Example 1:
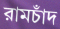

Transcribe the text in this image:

রামচাঁদ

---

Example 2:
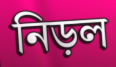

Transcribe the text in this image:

নিড়ল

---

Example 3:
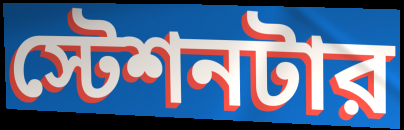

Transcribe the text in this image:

স্টেশনটার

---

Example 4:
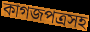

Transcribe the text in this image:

কাগজপত্রসহ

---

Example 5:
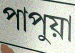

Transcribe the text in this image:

পাপুয়া